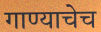
गाण्याचेच